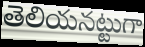
తెలియనట్టుగా